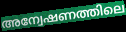
അന്വേഷണത്തിലെ